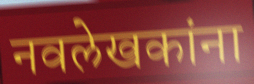
नवलेखकांना